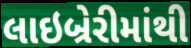
લાઇબ્રેરીમાંથી